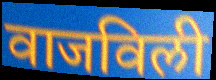
वाजविली